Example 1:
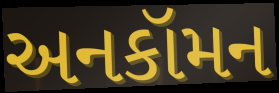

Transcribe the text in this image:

અનકૉમન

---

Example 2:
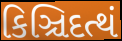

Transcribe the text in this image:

કિઞ્ચિદત્થં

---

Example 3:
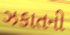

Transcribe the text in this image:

ઝકાતની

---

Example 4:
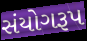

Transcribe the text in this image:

સંયોગરૂપ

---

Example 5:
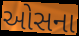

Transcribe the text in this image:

ઓસના